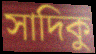
সাদিকু